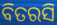
ବିତରସି